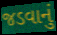
જડવાનું